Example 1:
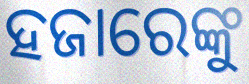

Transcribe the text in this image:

ହଜାରେଙ୍କୁ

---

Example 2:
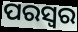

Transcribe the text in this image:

ପରସ୍ୱର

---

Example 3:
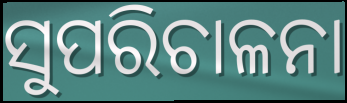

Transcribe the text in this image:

ସୁପରିଚାଳନା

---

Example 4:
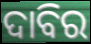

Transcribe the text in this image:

ଦାବିର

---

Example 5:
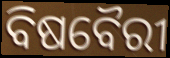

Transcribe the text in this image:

ବିଷବୈରୀ